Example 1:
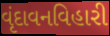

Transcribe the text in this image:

વૃંદાવનવિહારી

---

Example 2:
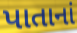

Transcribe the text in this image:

પાતાનાં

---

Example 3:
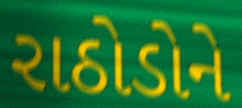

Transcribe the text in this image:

રાઠોડોને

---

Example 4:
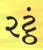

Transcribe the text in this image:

રટ્ઠં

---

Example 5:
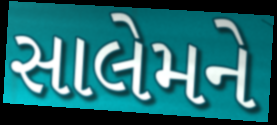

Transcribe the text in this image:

સાલેમને